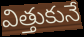
విత్తుకునే